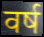
वर्ष